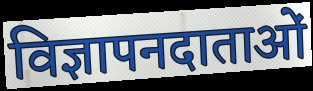
विज्ञापनदाताओं